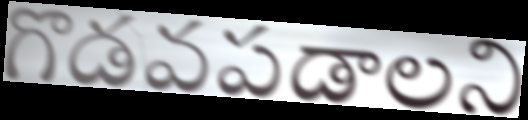
గొడవపడాలని